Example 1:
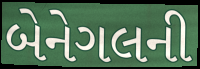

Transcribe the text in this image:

બેનેગલની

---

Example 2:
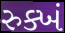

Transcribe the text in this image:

રુક્ખં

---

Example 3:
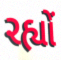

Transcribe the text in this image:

રહ્યોં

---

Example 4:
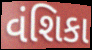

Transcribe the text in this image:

વંશિકા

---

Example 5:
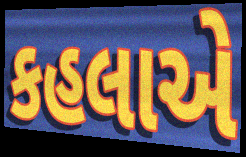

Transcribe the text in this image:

કહલાએ